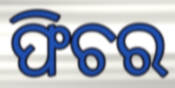
ଫିଚର